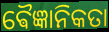
ଵୈଜ୍ଞାନିକତା